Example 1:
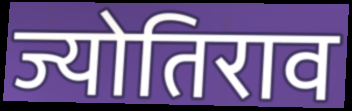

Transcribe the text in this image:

ज्योतिराव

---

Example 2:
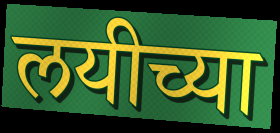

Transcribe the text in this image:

लयीच्या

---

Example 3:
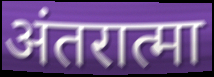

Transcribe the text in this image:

अंतरात्मा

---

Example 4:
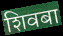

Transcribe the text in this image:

शिवबा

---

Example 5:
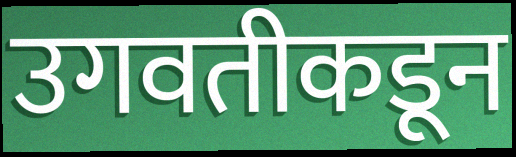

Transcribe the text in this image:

उगवतीकडून